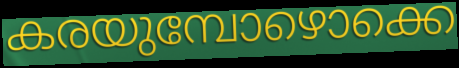
കരയുമ്പോഴൊക്കെ